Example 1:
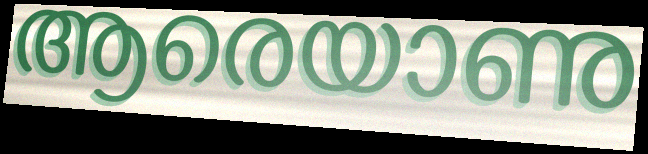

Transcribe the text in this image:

ആരെയാണു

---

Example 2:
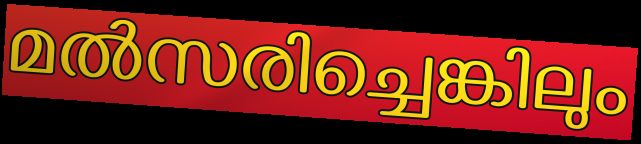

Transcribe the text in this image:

മൽസരിച്ചെങ്കിലും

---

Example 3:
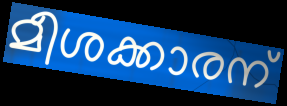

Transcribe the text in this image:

മീശക്കാരന്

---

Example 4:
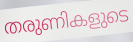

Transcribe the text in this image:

തരുണികളുടെ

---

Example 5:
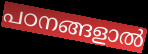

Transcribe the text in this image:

പഠനങ്ങളാൽ